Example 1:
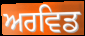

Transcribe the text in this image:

ਅਰਵਿਡ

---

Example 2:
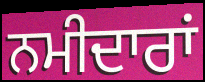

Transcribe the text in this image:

ਨਮੀਦਾਰਾਂ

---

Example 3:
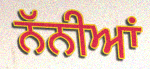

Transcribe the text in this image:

ਨੱਨੀਆਂ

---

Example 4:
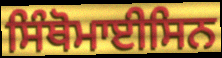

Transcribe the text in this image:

ਸਿੰਥੋਮਾਈਸਿਨ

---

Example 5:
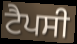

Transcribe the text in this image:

ਟੈਪਸੀ